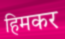
हिमकर